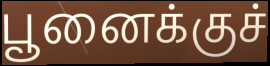
பூனைக்குச்